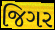
જિગર